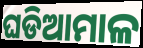
ଘଡିଆମାଳ